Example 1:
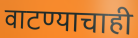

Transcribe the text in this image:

वाटण्याचाही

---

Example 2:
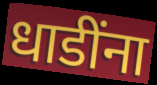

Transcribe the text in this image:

धाडींना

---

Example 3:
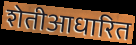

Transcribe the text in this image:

शेतीआधारित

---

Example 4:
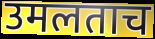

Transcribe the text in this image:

उमलताच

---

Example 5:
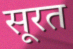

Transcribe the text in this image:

सूरत